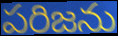
పరిజను